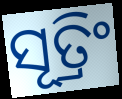
ସୂତ୍ରିଂ